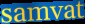
samvat